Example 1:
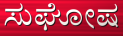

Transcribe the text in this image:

ಸುಘೋಷ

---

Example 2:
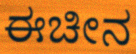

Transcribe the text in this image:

ಈಚೀನ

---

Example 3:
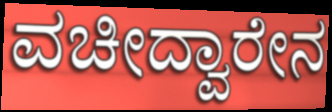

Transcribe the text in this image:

ವಚೀದ್ವಾರೇನ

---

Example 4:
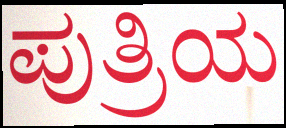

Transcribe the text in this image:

ಪುತ್ರಿಯ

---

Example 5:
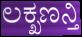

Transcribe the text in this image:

ಲಕ್ಖಣನ್ತಿ